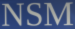
NSM